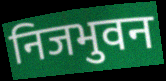
निजभुवन